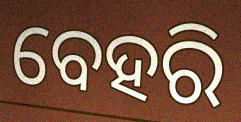
ବେହରି